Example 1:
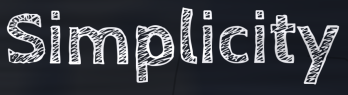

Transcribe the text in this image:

Simplicity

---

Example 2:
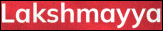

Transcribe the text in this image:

Lakshmayya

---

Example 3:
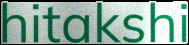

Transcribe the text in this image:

hitakshi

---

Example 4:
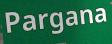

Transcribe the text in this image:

Pargana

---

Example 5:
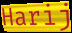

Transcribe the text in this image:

Harij